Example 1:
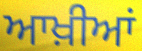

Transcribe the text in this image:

ਆਖ਼ੀਆਂ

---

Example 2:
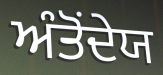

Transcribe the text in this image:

ਅੰਤੋਂਦੇਯ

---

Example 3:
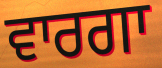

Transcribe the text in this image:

ਵਾਰਗਾ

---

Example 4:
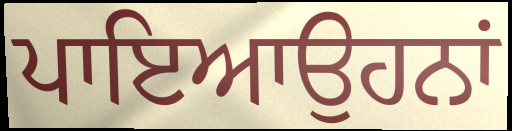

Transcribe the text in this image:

ਪਾਇਆਉਹਨਾਂ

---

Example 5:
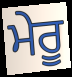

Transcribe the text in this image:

ਮੇਰੂ